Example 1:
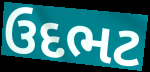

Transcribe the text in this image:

ઉદભટ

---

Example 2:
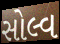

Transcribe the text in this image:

સોલ્વ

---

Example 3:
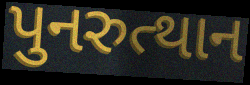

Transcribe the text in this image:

પુનરુત્થાન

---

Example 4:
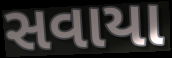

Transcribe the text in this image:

સવાયા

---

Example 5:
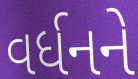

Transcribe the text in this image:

વર્ધનને